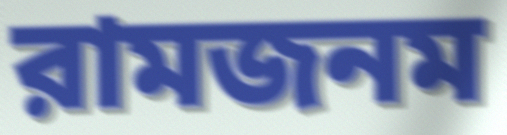
রামজনম